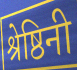
श्रेष्ठिनी